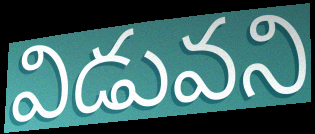
విడువని